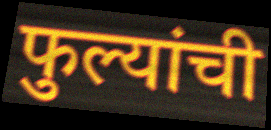
फुल्यांची